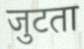
जुटता